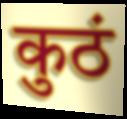
कुठं